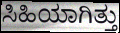
ಸಿಹಿಯಾಗಿತ್ತು